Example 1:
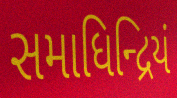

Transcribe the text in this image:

સમાધિન્દ્રિયં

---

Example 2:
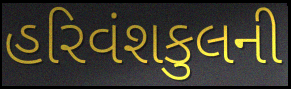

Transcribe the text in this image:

હરિવંશકુલની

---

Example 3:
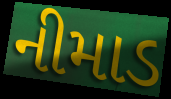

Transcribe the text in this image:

નીમાડ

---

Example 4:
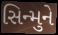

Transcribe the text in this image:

સિન્મુને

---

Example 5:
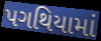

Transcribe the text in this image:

પગથિયામાં